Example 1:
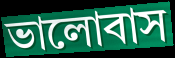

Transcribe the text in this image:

ভালোবাস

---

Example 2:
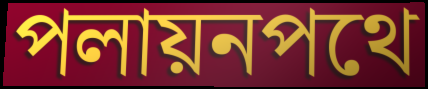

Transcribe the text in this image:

পলায়নপথে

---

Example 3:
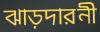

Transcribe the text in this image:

ঝাড়দারনী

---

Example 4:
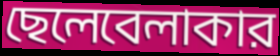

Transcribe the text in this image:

ছেলেবেলাকার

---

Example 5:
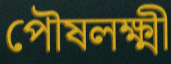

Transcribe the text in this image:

পৌষলক্ষ্মী